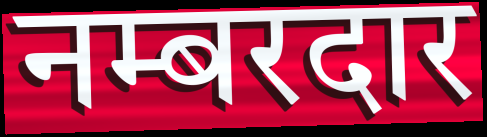
नम्बरदार